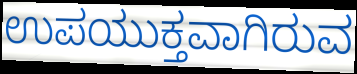
ಉಪಯುಕ್ತವಾಗಿರುವ